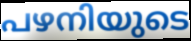
പഴനിയുടെ